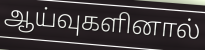
ஆய்வுகளினால்